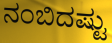
ನಂಬಿದಷ್ಟು